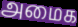
அமைக